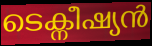
ടെക്നീഷ്യൻ